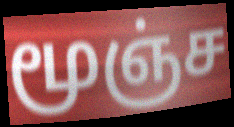
மூஞ்ச